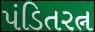
પંડિતરત્ન